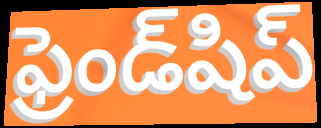
ఫ్రెండ్‌షిప్